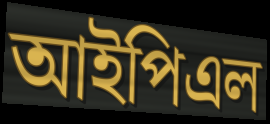
আইপিএল